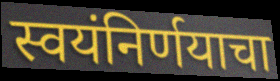
स्वयंनिर्णयाचा